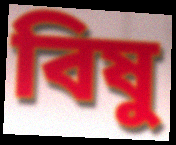
বিষু